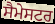
ਸੈਮੇਸਟਰ